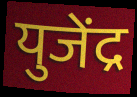
युजेंद्र